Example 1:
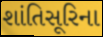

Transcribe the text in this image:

શાંતિસૂરિના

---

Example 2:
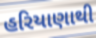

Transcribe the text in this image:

હરિયાણાથી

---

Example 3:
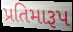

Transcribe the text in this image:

પ્રતિમારૂપ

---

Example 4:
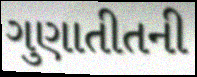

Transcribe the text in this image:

ગુણાતીતની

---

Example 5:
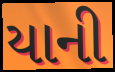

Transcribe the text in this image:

યાની